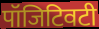
पॉजिटिवटी